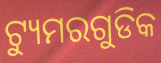
ଟ୍ୟୁମରଗୁଡିକ